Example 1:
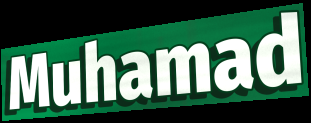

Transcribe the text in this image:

Muhamad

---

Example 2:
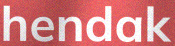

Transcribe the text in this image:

hendak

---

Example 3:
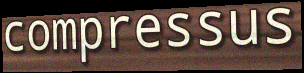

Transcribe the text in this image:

compressus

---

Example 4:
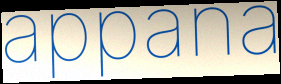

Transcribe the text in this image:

appana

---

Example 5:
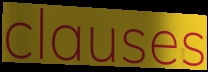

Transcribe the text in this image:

clauses